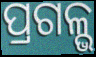
ପ୍ରଗଳ୍ଭ